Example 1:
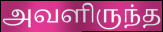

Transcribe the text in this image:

அவளிருந்த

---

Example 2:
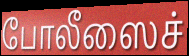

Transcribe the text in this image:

போலீஸைச்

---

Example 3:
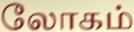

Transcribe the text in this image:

லோகம்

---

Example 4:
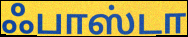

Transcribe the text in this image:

ஃபாஸ்டா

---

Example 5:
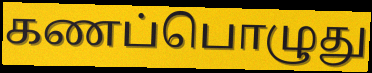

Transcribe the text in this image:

கணப்பொழுது